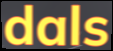
dals